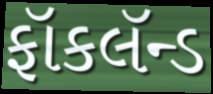
ફૉકલૅન્ડ